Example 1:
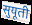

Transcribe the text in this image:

सुयूती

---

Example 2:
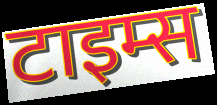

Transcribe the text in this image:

टाइम्‍स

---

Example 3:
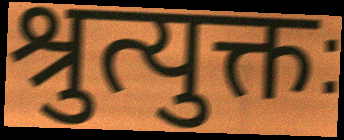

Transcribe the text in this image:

श्रुत्युक्तः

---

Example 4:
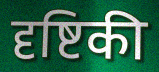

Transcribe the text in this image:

दृष्टिकी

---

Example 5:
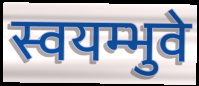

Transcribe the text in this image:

स्वयम्भुवे